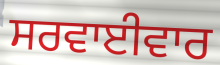
ਸਰਵਾਈਵਾਰ